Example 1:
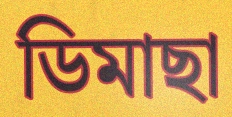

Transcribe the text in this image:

ডিমাছা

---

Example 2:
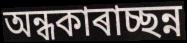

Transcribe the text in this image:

অন্ধকাৰাচ্ছন্ন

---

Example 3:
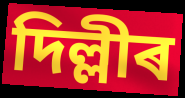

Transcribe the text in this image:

দিল্লীৰ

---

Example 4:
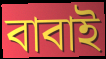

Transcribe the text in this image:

বাবাই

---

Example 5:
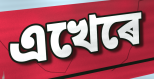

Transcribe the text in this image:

এখেৰে